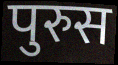
पुरुस